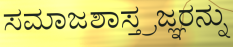
ಸಮಾಜಶಾಸ್ತ್ರಜ್ಞರನ್ನು